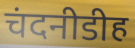
चंदनीडीह